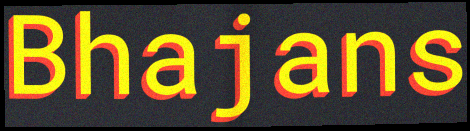
Bhajans